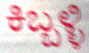
ಕಿಬ್ಬಳ್ಳಿ